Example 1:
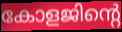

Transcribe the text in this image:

കോളജിന്റെ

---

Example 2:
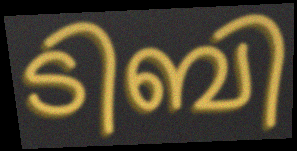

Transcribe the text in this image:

ടിബി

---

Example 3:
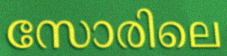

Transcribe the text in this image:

സോരിലെ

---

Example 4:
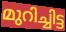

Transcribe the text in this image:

മുറിച്ചിട്ട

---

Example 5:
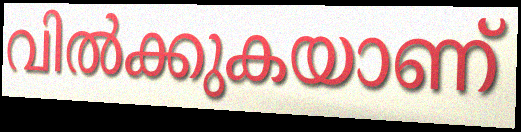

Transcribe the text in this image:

വിൽക്കുകയാണ്